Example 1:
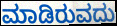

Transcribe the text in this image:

ಮಾಡಿರುವದು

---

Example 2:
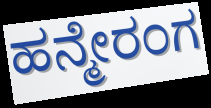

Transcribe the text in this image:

ಹನ್ಮೇರಂಗ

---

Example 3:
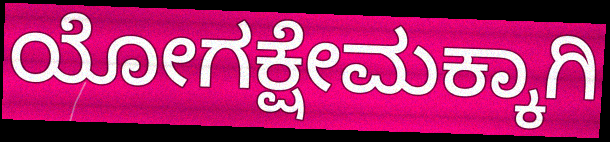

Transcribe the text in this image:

ಯೋಗಕ್ಷೇಮಕ್ಕಾಗಿ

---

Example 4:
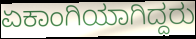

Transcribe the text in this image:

ಏಕಾಂಗಿಯಾಗಿದ್ದರು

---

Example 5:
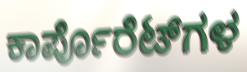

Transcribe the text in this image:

ಕಾರ್ಪೊರೆಟ್‌ಗಳ